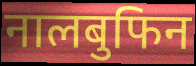
नालबुफिन